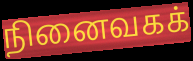
நினைவகக்